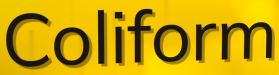
Coliform